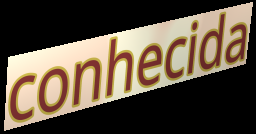
conhecida